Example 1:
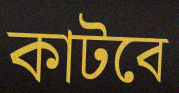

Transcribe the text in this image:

কাটবে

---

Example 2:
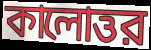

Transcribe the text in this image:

কালোত্তর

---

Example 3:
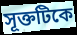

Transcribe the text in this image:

সূক্তটিকে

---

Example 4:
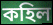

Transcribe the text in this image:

কহিল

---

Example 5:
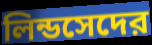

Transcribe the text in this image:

লিন্ডসেদের